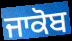
ਜਾਕੋਬ